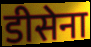
डीसेना